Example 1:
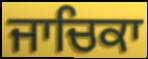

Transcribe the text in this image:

ਜਾਚਿਕਾ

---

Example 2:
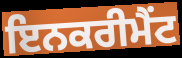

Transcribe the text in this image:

ਇਨਕਰੀਮੈਂਟ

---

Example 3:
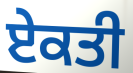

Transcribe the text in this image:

ਏਕਤੀ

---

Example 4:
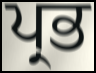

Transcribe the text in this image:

ਪ੍ਰਭ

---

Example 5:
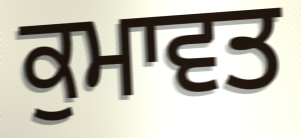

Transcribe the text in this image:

ਕੁਮਾਵਤ